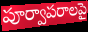
పూర్వాపరాలపై